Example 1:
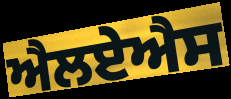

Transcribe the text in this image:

ਐਲਏਐਸ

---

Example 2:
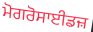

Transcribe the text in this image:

ਮੋਗਰੋਸਾਈਡਜ਼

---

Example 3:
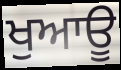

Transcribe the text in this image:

ਖੁਆਊ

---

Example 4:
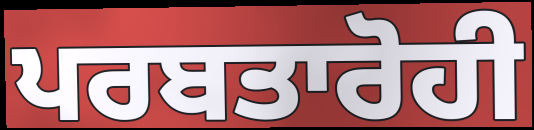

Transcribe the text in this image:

ਪਰਬਤਾਰੋਹੀ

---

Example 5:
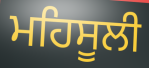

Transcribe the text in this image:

ਮਹਿਸੂਲੀ